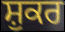
ਸ਼ੁਕਰ